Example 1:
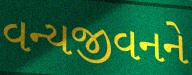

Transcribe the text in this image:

વન્યજીવનને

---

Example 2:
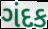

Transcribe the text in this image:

ગંદક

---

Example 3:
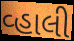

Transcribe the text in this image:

વ્હાલી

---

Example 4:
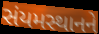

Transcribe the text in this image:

સંયમસ્થાનને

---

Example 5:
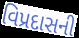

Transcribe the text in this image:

વિપ્રદાસની